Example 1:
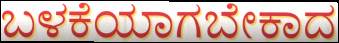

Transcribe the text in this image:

ಬಳಕೆಯಾಗಬೇಕಾದ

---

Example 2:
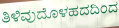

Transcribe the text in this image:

ತಿಳಿವುದೊಳಹದದಿಂದ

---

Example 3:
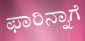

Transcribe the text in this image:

ಫಾರಿನ್ನಾಗೆ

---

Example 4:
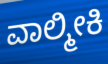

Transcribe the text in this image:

ವಾಲ್ಮೀಕಿ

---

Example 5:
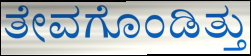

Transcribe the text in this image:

ತೇವಗೊಂಡಿತ್ತು